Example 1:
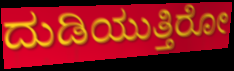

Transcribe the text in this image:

ದುಡಿಯುತ್ತಿರೋ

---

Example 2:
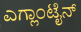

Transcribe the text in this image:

ಎಗ್ಲಾಂಟೈನ್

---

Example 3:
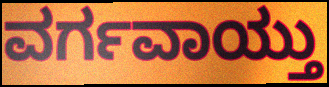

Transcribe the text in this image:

ವರ್ಗವಾಯ್ತು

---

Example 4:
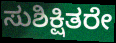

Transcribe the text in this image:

ಸುಶಿಕ್ಷಿತರೇ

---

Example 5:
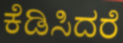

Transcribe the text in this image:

ಕೆಡಿಸಿದರೆ